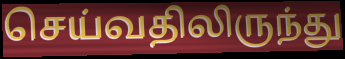
செய்வதிலிருந்து